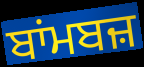
ਬਾਂਮਬਜ਼